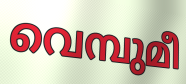
വെമ്പുമീ